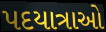
પદયાત્રાઓ